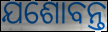
ଯଶୋବନ୍ତ